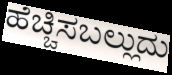
ಹೆಚ್ಚಿಸಬಲ್ಲುದು